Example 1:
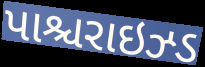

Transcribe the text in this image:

પાશ્ચરાઇઝ્ડ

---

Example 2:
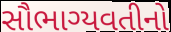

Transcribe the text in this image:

સૌભાગ્યવતીનો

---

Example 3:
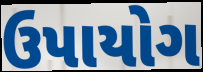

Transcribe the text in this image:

ઉપાયોગ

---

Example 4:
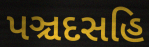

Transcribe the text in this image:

પઞ્ચદસહિ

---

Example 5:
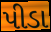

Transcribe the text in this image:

પીડા